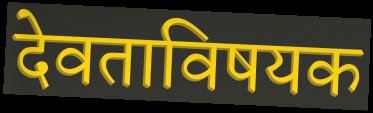
देवताविषयक